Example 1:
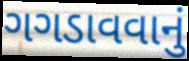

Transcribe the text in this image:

ગગડાવવાનું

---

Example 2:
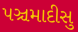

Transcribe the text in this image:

પઞ્ચમાદીસુ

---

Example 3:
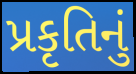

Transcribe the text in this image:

પ્રકૃતિનું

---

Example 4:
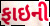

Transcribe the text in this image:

ફાઇની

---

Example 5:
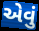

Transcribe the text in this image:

એવું